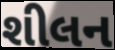
શીલન